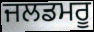
ਜਲਡਮਰੂ